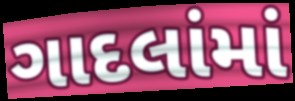
ગાદલાંમાં